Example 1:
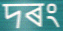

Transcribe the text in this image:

দৰং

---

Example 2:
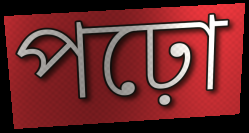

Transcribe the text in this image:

পঢ়ো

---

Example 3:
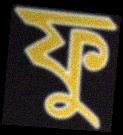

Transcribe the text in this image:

ফু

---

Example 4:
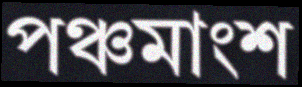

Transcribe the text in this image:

পঞ্চমাংশ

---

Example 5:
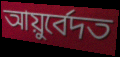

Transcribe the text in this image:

আয়ুৰ্বেদত